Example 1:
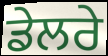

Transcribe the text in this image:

ਡੇਲਰੇ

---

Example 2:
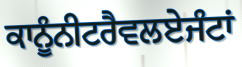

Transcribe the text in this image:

ਕਾਨੂੰਨੀਟਰੈਵਲਏਜੰਟਾਂ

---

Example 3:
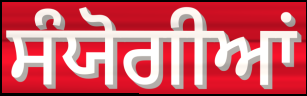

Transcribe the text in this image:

ਸੰਯੋਗੀਆਂ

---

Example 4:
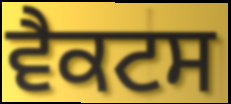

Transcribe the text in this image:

ਵੈਕਟਸ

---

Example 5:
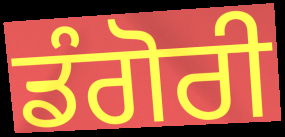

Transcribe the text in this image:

ਡੰਗੋਰੀ